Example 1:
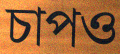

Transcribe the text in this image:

চাপও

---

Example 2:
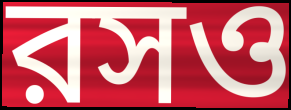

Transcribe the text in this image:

রসও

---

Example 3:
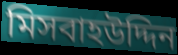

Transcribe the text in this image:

মিসবাহউদ্দিন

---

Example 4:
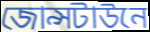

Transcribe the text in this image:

জোন্সটাউনে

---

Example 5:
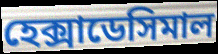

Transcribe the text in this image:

হেক্সাডেসিমাল